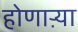
होणाऱ्‍या